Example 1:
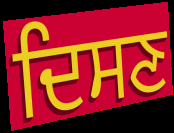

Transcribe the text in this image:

ਦਿਸਣ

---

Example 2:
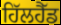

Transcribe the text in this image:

ਹਿੱਲਹੈੱਡ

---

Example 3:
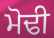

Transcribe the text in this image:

ਮੋਢੀ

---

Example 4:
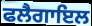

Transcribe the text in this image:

ਫਲੈਗਾਇਲ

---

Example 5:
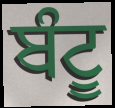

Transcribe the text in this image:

ਬੰਟੂ